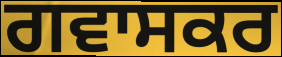
ਗਵਾਸਕਰ